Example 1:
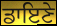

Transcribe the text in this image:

ਡਾਇਣੇ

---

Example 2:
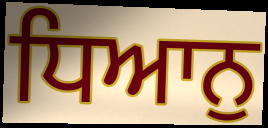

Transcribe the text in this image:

ਧਿਆਨੁ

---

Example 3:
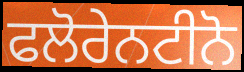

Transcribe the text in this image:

ਫਲੋਰੇਨਟੀਨੋ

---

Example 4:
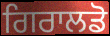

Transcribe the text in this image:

ਗਿਰਾਲਡੋ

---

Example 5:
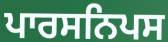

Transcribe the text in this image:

ਪਾਰਸਨਿਪਸ